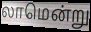
லாமென்று